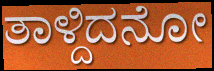
ತಾಳ್ದಿದನೋ